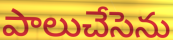
పాలుచేసెను